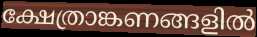
ക്ഷേത്രാങ്കണങ്ങളിൽ